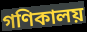
গণিকালয়